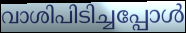
വാശിപിടിച്ചപ്പോൾ